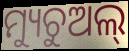
ମ୍ୟୁଚୁଅଲ୍